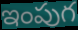
ఇంపుగ